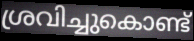
ശ്രവിച്ചുകൊണ്ട്